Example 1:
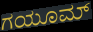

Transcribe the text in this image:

ಗಯೂಮ್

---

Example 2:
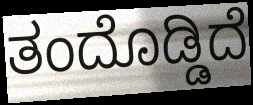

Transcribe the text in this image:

ತಂದೊಡ್ಡಿದೆ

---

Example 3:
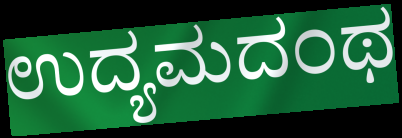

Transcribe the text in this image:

ಉದ್ಯಮದಂಥ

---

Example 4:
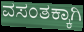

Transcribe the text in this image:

ವಸಂತಕ್ಕಾಗಿ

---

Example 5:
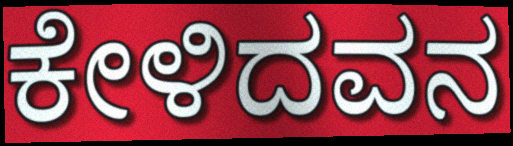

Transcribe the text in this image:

ಕೇಳಿದವನ